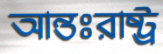
আন্তঃরাষ্ট্র